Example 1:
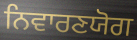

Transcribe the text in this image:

ਨਿਵਾਰਣਯੋਗ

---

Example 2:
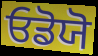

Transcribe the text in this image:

ਓਡੋਯੋ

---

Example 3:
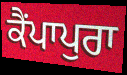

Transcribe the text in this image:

ਕੈਂਪਾਪੁਰਾ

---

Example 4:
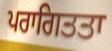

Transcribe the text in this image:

ਪਰਾਗਿਤਤਾ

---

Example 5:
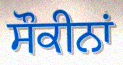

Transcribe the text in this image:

ਸੌਕੀਨਾਂ